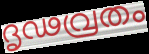
ദൃഢവ്രതം